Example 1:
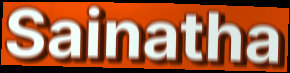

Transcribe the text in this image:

Sainatha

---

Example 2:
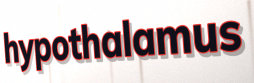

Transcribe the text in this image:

hypothalamus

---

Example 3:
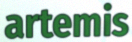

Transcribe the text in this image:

artemis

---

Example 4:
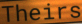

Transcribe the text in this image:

Theirs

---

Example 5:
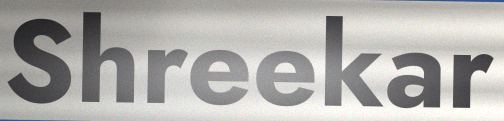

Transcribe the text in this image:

Shreekar